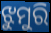
ଝୁମୁରି